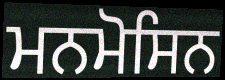
ਮਨਮੋਸਿਨ